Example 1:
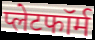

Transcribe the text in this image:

प्‍लेटफॉर्म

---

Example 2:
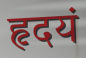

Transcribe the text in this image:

हृदयं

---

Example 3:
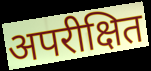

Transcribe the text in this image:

अपरीक्षित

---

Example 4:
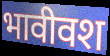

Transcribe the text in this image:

भावीवश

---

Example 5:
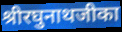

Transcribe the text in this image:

श्रीरघुनाथजीका